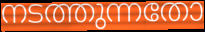
നടത്തുന്നതോ